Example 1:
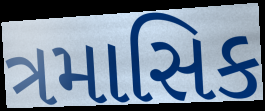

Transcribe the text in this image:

ત્રમાસિક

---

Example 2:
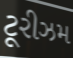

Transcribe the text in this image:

ટૂરીઝમ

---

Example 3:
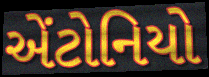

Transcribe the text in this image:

એંટોનિયો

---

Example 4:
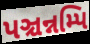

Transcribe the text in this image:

પઞ્ચન્નમ્પિ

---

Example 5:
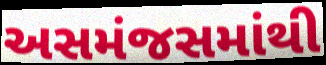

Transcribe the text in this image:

અસમંજસમાંથી